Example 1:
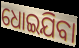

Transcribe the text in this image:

ଧୋଇଯିବା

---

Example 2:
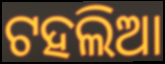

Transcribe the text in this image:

ଟହଲିଆ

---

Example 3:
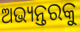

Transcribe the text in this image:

ଅଭ୍ୟନ୍ତରକୁ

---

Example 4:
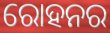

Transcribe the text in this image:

ରୋହନର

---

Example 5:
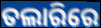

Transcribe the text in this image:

ତଲାରିରେ